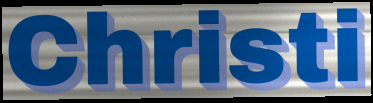
Christi